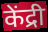
केंद्री